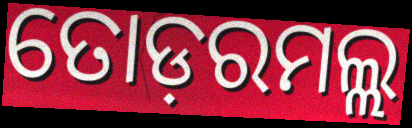
ତୋଡ଼ରମଲ୍ଲ